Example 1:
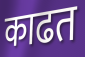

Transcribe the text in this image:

काढत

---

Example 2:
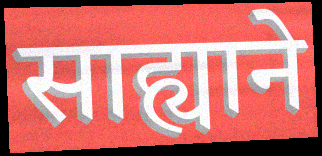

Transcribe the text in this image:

साह्याने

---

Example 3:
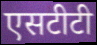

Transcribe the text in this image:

एसटीटी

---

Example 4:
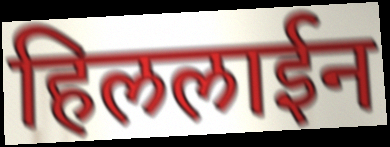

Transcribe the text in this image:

हिललाईन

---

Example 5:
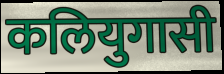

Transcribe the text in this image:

कलियुगासी